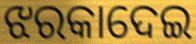
ଝରକାଦେଇ